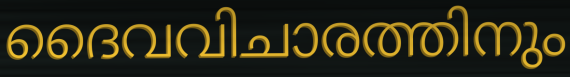
ദൈവവിചാരത്തിനും